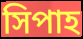
সিপাহ